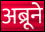
अब्रूने